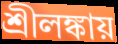
শ্রীলঙ্কায়